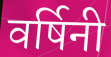
वर्षिनी